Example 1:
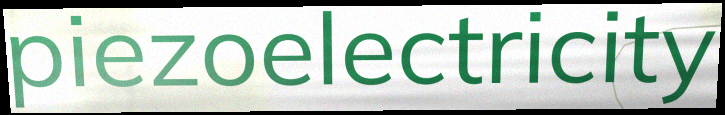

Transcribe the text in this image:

piezoelectricity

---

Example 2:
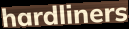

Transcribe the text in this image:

hardliners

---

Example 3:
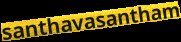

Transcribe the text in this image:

santhavasantham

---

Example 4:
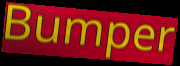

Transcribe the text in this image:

Bumper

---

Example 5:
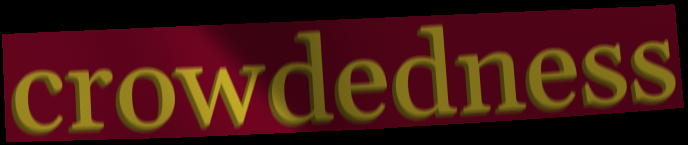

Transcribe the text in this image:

crowdedness